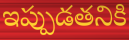
ఇప్పుడతనికి